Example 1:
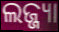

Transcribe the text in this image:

ଲଜ୍ଜ୍ୟା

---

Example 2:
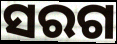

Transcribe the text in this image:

ସରଗ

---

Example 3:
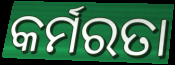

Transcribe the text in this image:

କର୍ମରତା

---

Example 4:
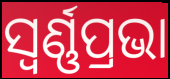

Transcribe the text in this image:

ସ୍ୱର୍ଣ୍ଣପ୍ରଭା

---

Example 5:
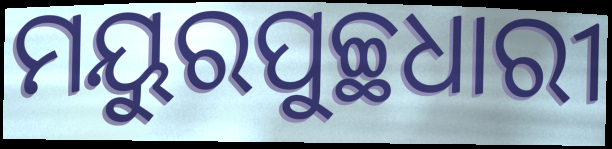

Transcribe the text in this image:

ମୟୁରପୁଚ୍ଛଧାରୀ